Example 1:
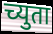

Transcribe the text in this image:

च्युता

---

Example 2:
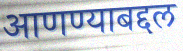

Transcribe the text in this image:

आणण्याबद्दल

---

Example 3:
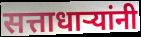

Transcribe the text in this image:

सत्ताधाऱ्यांनी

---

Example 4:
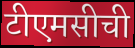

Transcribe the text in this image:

टीएमसीची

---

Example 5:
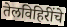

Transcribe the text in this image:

तेलविहिरींचे